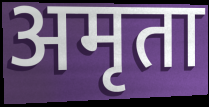
अमृता